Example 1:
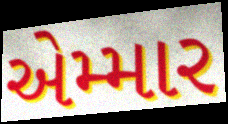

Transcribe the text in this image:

એમ્માર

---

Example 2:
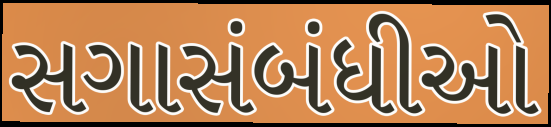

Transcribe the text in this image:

સગાસંબંધીઓ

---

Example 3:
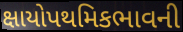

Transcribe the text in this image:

ક્ષાયોપથમિકભાવની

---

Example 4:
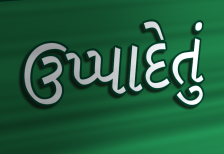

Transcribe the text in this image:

ઉપ્પાદેતું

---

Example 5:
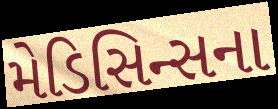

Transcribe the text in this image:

મેડિસિન્સના